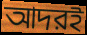
আদরই